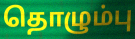
தொழும்பு